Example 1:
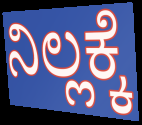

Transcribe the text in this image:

ನಿಲ್ಲಕ್ಕೆ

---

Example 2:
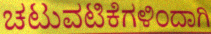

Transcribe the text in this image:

ಚಟುವಟಿಕೆಗಳಿಂದಾಗಿ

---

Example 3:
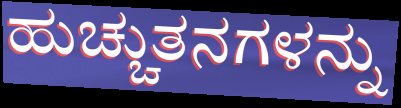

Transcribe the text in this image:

ಹುಚ್ಚುತನಗಳನ್ನು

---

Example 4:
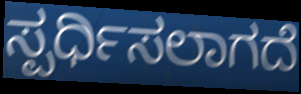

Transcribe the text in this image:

ಸ್ಪರ್ಧಿಸಲಾಗದೆ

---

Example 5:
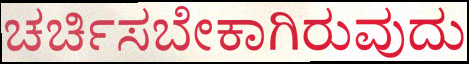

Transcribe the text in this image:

ಚರ್ಚಿಸಬೇಕಾಗಿರುವುದು